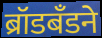
ब्रॉडबँडने